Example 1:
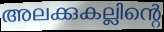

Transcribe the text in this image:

അലക്കുകല്ലിന്റെ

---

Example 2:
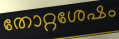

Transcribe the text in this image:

തോറ്റശേഷം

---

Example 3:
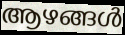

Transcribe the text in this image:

ആഴങ്ങൾ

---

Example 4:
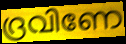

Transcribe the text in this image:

ദ്രവിണേ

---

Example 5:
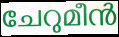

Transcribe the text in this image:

ചേറുമീൻ